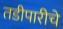
तडीपारीचे